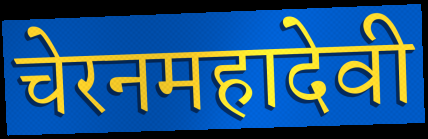
चेरनमहादेवी